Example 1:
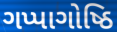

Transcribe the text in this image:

ગપ્પાગોષ્ઠિ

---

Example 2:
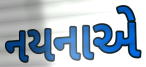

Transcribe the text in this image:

નયનાએ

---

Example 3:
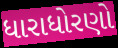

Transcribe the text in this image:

ધારાધોરણો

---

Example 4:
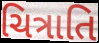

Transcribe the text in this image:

ચિત્રાતિ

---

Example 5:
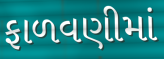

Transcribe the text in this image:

ફાળવણીમાં